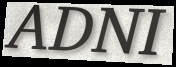
ADNI